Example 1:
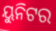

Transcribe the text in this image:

ୟୁନିଟର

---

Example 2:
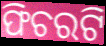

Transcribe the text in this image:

ଫିଚରଟି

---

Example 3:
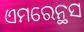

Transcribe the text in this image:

ଏମରେନ୍ଥସ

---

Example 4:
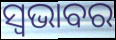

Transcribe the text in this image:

ସ୍ୱଭାବର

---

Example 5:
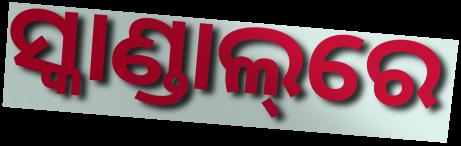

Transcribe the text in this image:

ସ୍କାଣ୍ଡାଲ୍‌ରେ